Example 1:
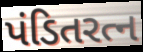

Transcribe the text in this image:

પંડિતરત્ન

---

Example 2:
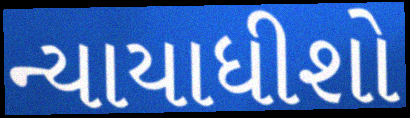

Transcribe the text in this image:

ન્યાયાધીશો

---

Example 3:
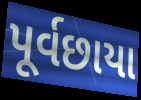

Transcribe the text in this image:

પૂર્વછાયા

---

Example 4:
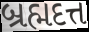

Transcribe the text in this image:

બ્રહ્મદત્ત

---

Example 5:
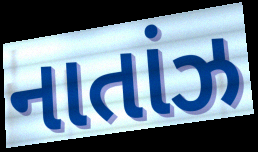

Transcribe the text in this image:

નાતાંઝ